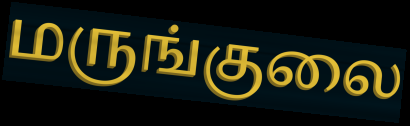
மருங்குலை